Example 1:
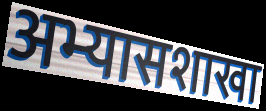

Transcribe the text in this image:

अभ्यासशाखा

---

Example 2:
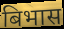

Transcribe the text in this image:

बिभास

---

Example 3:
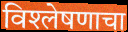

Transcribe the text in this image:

विश्‍लेषणाचा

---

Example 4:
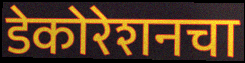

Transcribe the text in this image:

डेकोरेशनचा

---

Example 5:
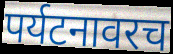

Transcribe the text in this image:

पर्यटनावरच